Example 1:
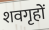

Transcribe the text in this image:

शवगृहों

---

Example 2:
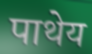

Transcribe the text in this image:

पाथेय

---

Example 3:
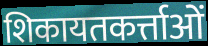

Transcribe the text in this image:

शिकायतकर्त्ताओं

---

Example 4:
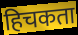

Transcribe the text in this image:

हिचकता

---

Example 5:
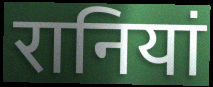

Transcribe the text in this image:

रानियां